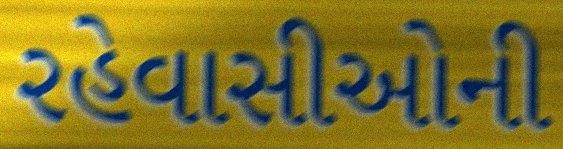
રહેવાસીઓની